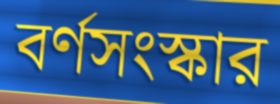
বর্ণসংস্কার